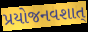
પ્રયોજનવશાત્